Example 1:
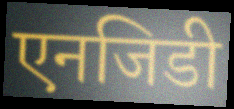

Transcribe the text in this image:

एनजिडी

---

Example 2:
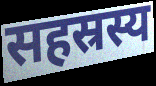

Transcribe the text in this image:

सहस्रस्य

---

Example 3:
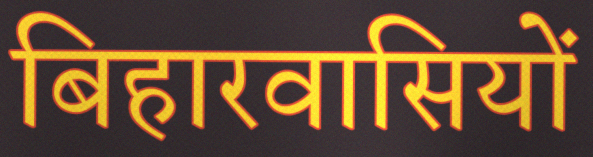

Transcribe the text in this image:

बिहारवासियों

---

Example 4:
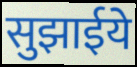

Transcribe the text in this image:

सुझाईये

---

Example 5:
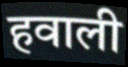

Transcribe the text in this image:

हवाली